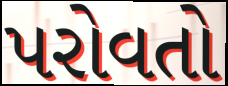
પરોવતો